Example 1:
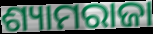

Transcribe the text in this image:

ଶ୍ୟାମରାଜା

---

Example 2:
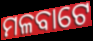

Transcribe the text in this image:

ମଳବାଟେ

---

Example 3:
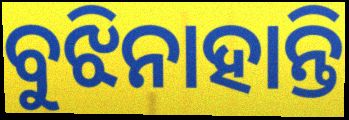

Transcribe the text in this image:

ବୁଝିନାହାନ୍ତି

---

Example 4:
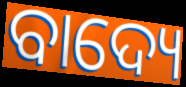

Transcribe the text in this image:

ବାଦ୍ୟେ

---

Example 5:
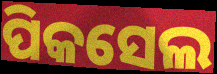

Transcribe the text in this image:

ପିକସେଲ